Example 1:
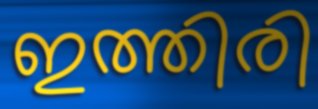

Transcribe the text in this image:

ഇത്തിരി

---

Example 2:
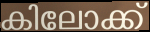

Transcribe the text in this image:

കിലോക്ക്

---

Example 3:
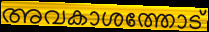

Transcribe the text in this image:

അവകാശത്തോട്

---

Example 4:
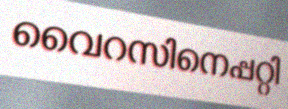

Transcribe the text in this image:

വൈറസിനെപ്പറ്റി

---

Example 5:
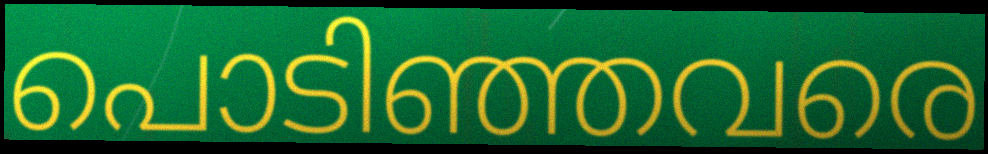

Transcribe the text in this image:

പൊടിഞ്ഞവരെ